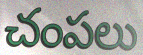
చంపలు